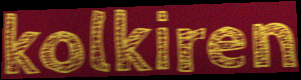
kolkiren